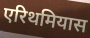
एरिथमियास